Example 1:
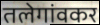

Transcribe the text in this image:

तलेगांवकर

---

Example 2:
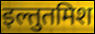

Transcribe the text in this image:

इल्तुतमिश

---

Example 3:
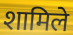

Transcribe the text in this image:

शामिले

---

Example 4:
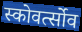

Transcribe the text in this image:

स्कोवर्त्सोव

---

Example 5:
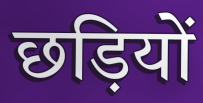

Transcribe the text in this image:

छड़ियों